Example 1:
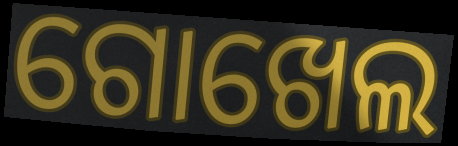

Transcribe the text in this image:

ଗୋଖେଲ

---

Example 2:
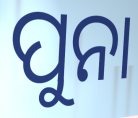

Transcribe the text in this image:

ପୁନା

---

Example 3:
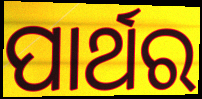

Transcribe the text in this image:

ପାର୍ଥର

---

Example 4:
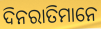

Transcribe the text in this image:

ଦିନରାତିମାନେ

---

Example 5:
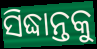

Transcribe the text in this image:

ସିଦ୍ଧାନ୍ତକୁ